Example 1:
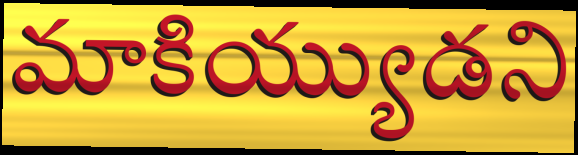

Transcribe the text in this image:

మాకియ్యుడని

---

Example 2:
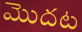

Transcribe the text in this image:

మొదట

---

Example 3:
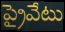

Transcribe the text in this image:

ప్రైవేటు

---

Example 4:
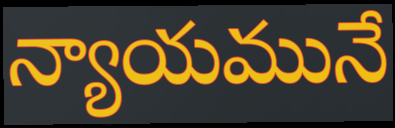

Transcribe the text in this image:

న్యాయమునే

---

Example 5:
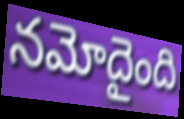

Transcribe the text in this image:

నమోదైంది